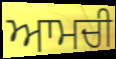
ਆਮਚੀ